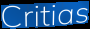
Critias